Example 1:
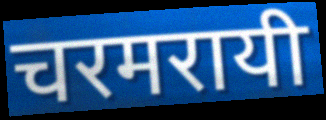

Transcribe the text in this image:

चरमरायी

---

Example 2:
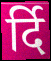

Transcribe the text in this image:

र्दि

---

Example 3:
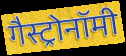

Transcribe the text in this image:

गैस्ट्रोनॉमी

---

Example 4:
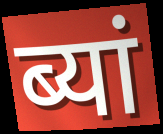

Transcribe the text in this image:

ब्यां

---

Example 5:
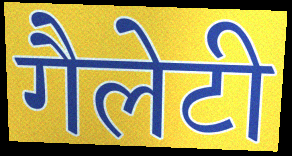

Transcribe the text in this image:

गैलेटी